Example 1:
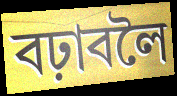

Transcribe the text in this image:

বঢ়াবলৈ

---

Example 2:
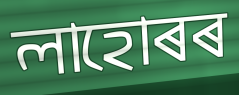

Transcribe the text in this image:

লাহোৰৰ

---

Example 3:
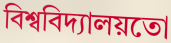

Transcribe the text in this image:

বিশ্ববিদ্য়ালয়তো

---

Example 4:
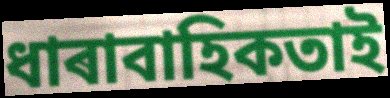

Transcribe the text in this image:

ধাৰাবাহিকতাই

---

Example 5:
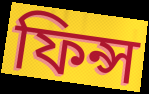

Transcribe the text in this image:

ফিন্স